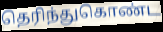
தெரிந்துகொண்ட